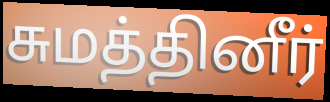
சுமத்தினீர்